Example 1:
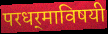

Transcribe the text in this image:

परधर्माविषयी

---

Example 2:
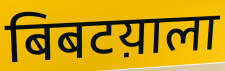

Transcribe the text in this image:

बिबटय़ाला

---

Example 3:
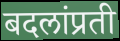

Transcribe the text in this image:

बदलांप्रती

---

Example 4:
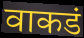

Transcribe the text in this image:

वाकडं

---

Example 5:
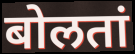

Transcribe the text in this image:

बोलतां